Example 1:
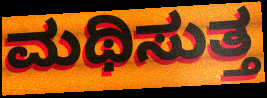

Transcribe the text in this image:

ಮಥಿಸುತ್ತ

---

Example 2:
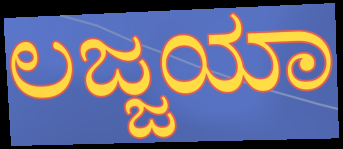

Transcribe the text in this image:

ಲಜ್ಜಯಾ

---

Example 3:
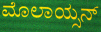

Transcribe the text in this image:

ಮೊಲಾಯ್ಸನ್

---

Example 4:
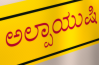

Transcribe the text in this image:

ಅಲ್ಪಾಯುಷಿ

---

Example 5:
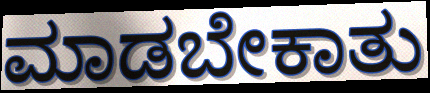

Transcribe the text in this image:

ಮಾಡಬೇಕಾತು